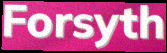
Forsyth